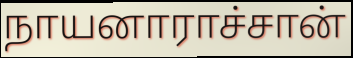
நாயனாராச்சான்